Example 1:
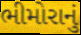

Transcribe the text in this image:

ભીમોરાનું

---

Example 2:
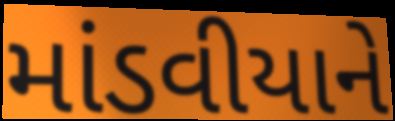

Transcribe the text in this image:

માંડવીયાને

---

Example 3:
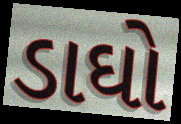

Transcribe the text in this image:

ડાઘો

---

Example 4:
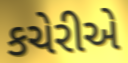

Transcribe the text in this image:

કચેરીએ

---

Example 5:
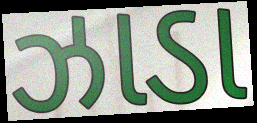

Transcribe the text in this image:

ઝાડા